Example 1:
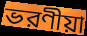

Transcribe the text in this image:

ভরণীয়া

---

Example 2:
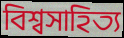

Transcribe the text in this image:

বিশ্বসাহিত্য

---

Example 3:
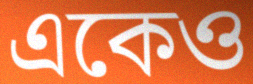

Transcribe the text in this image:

একেও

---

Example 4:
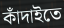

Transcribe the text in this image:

কাঁদাইতে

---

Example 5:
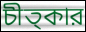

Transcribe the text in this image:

চীত্কার